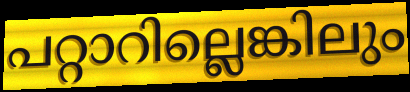
പറ്റാറില്ലെങ്കിലും